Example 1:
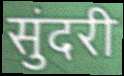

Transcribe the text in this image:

सुंदरी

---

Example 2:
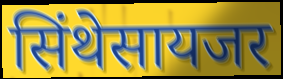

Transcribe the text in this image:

सिंथेसायजर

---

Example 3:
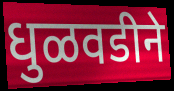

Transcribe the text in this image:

धुळवडीने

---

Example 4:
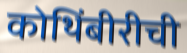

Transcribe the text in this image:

कोथिंबीरीची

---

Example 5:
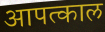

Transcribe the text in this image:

आपत्काल